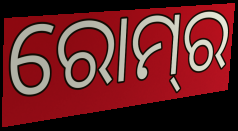
ରୋମ୍‍ର